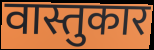
वास्तुकार